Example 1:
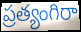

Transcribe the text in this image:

ప్రత్యంగిరా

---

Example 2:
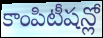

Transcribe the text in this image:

కాంపిటీషన్లో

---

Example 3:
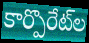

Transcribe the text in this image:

కార్పొరేట్‌ల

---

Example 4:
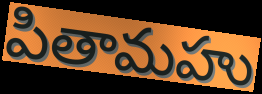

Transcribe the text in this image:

పితామహు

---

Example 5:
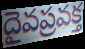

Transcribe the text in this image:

దైవప్రవక్త